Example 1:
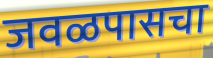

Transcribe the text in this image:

जवळपासचा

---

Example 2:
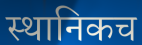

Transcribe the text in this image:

स्थानिकच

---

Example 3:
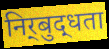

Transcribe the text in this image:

निर्बुद्धता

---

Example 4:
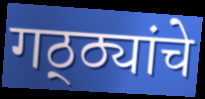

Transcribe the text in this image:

गठ्ठ्यांचे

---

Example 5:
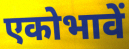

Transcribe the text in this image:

एकोभावें